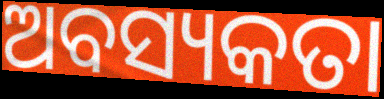
ଅବସ୍ୟକତା